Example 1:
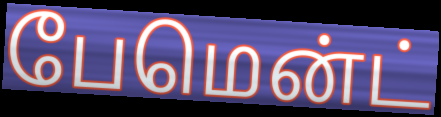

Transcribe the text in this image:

பேமென்ட்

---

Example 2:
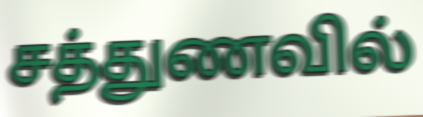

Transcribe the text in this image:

சத்துணவில்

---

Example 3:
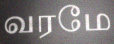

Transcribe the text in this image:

வரமே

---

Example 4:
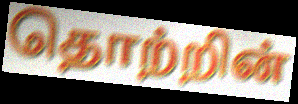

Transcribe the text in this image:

தொற்றின்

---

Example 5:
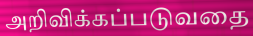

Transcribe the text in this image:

அறிவிக்கப்படுவதை